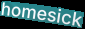
homesick